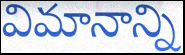
విమానాన్ని